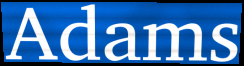
Adams